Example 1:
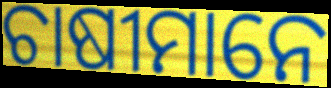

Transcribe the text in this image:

ଚାଷୀମାନେ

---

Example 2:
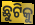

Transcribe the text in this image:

ଛୁଟିକୁ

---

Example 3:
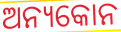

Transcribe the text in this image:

ଅନ୍ୟକୋନ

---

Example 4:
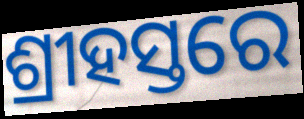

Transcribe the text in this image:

ଶ୍ରୀହସ୍ତରେ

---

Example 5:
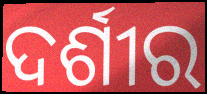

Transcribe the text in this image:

ଦର୍ଶୀର